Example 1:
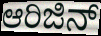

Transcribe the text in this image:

ಆರಿಜಿನ್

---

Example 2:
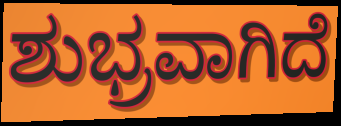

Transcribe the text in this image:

ಶುಭ್ರವಾಗಿದೆ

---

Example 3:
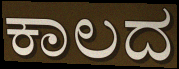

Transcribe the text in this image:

ಕಾಲದ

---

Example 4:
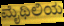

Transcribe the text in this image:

ಮೈಥಿಲಿಯ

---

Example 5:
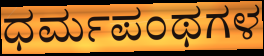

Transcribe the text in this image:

ಧರ್ಮಪಂಥಗಳ